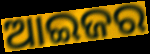
ଆଇଜର